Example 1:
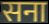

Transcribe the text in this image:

सना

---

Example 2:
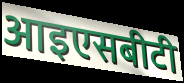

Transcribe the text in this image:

आइएसबीटी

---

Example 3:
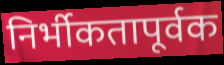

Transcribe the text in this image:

निर्भीकतापूर्वक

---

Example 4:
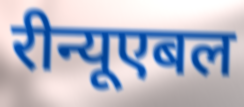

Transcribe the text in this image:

रीन्यूएबल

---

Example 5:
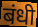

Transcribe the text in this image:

बंधी